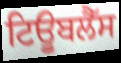
ਟਿਊਬਲੈੱਸ